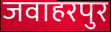
जवाहरपुर